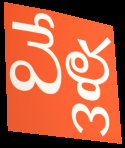
వేళ్ల